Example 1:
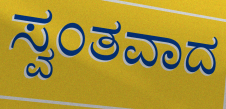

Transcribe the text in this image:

ಸ್ವಂತವಾದ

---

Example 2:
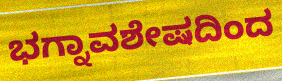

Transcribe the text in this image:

ಭಗ್ನಾವಶೇಷದಿಂದ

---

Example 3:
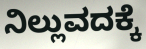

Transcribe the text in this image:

ನಿಲ್ಲುವದಕ್ಕೆ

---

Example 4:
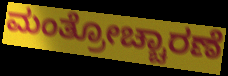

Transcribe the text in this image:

ಮಂತ್ರೋಚ್ಚಾರಣೆ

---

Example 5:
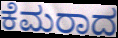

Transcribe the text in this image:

ಕೆಮರಾದ